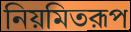
নিয়মিতরূপ